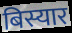
बिस्यार